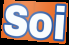
Soi